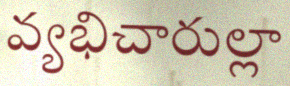
వ్యభిచారుల్లా